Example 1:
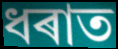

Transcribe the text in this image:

ধৰাত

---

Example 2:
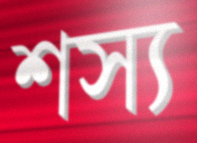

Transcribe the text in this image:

শস্য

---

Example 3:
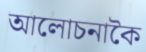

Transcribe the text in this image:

আলোচনাকৈ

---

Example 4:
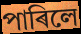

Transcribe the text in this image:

পাৰিলে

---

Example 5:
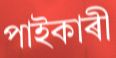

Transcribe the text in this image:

পাইকাৰী